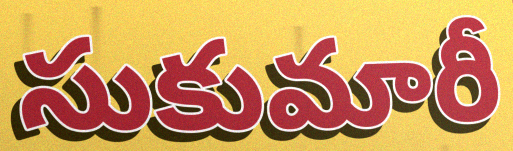
సుకుమారీ